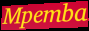
Mpemba